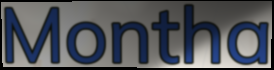
Montha